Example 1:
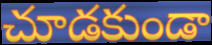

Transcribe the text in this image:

చూడకుండా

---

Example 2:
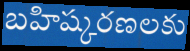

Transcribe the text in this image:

బహిష్కరణలకు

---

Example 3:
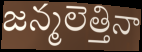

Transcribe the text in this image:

జన్మలెత్తినా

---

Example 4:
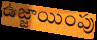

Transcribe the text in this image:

ఉజ్జాయింపు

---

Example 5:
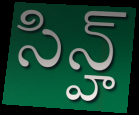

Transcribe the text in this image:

సిన్హ్